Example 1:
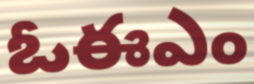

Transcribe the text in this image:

ఓఈఎం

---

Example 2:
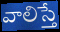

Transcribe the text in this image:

వాలిస్తే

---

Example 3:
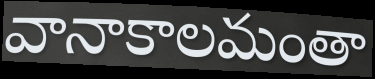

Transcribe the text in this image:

వానాకాలమంతా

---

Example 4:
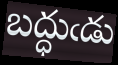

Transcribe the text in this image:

బద్ధుఁడు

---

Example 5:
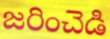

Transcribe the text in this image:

జరించెడి